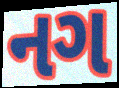
નગ